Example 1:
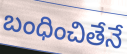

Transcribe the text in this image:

బంధించితేనే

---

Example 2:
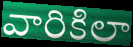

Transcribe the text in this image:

వారికిలా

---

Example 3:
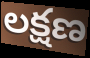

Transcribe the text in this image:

లక్షణ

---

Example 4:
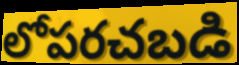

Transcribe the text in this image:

లోపరచబడి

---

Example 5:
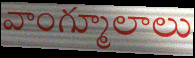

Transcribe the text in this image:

వాంగ్మూలాలు